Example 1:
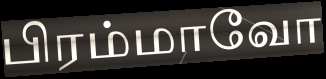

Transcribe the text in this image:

பிரம்மாவோ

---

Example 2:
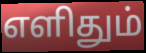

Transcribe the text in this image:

எளிதும்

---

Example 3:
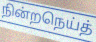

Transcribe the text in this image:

நின்றநெய்த்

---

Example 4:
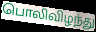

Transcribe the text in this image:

பொலிவிழந்து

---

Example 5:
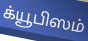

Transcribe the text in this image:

க்யூபிஸம்